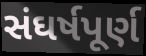
સંઘર્ષપૂર્ણ